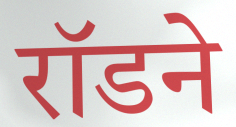
रॉडने